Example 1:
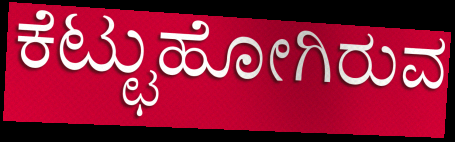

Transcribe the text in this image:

ಕೆಟ್ಟುಹೋಗಿರುವ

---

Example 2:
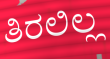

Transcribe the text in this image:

ತಿರಲಿಲ್ಲ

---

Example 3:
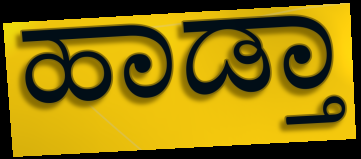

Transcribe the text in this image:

ಹಾಡ್ತಾ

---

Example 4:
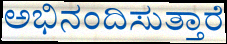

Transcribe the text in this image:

ಅಭಿನಂದಿಸುತ್ತಾರೆ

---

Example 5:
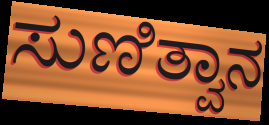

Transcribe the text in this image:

ಸುಣಿತ್ವಾನ